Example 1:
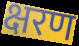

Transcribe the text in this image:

क्षरण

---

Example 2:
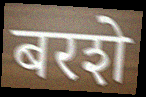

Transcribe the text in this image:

बरशे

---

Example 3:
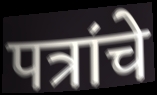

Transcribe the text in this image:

पत्रांचे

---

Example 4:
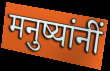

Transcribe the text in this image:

मनुष्यांनीं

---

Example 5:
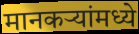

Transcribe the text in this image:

मानकऱ्यांमध्ये